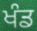
ਖੰਡ